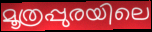
മൂത്രപ്പുരയിലെ